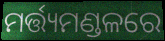
ମର୍ତ୍ତ୍ୟମଣ୍ଡଳରେ